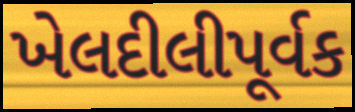
ખેલદીલીપૂર્વક